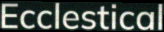
Ecclestical